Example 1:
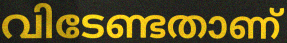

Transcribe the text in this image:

വിടേണ്ടതാണ്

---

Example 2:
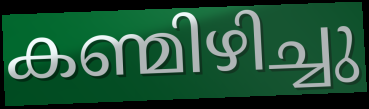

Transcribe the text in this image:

കണ്മിഴിച്ചു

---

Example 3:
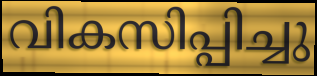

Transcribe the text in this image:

വികസിപ്പിച്ചു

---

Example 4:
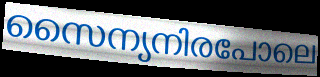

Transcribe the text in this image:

സൈന്യനിരപോലെ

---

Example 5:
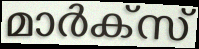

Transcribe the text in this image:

മാർക്‌സ്